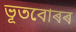
ভূতবোৰৰ